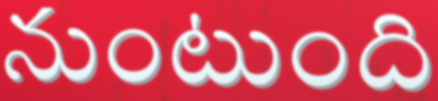
నుంటుంది